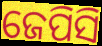
ଜେପିସି